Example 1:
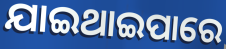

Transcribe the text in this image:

ଯାଇଥାଇପାରେ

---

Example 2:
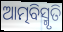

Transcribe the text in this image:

ଆତ୍ମବିସ୍ମୃତି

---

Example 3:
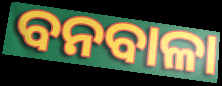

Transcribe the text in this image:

ବନବାଳା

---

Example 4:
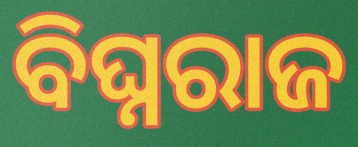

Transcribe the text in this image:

ବିଘ୍ନରାଜ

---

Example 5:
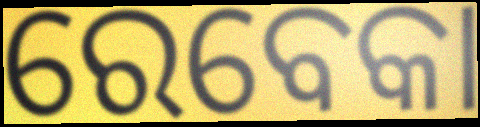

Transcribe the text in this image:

ରେବେକା